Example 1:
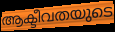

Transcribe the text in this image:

ആക്ടീവതയുടെ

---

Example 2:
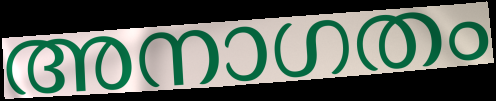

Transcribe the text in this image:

അനാഗതം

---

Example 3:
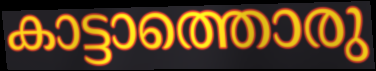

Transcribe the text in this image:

കാട്ടാത്തൊരു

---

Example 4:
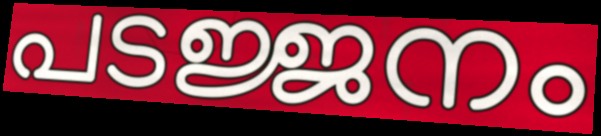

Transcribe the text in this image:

പടജ്ജനം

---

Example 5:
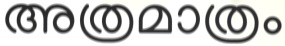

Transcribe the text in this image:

അത്രമാത്രം